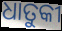
ଧାତୁକୀ